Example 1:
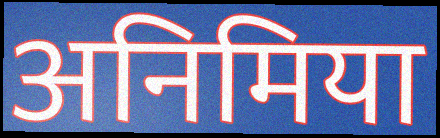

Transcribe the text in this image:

अनिमिया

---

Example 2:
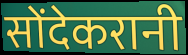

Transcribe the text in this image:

सोंदेकरानी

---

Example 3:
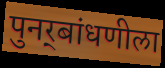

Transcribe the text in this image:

पुनर्बांधणीला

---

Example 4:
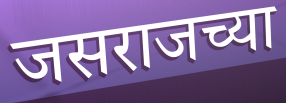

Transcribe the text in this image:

जसराजच्या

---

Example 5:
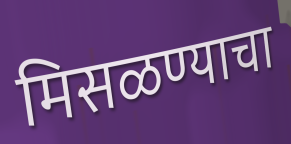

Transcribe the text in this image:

मिसळण्याचा